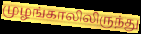
முழங்காலிலிருந்து